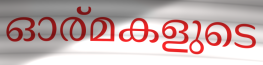
ഓര്മകളുടെ